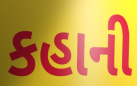
કહાની